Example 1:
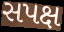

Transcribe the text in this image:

સપક્ષ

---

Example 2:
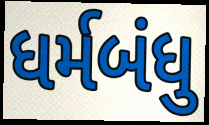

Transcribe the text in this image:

ધર્મબંધુ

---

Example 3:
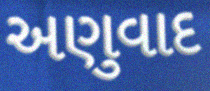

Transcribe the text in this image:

અણુવાદ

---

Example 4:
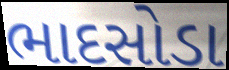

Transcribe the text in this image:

ભાદસોડા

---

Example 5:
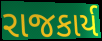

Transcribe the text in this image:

રાજકાર્ય